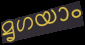
മൃഗയാം